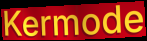
Kermode